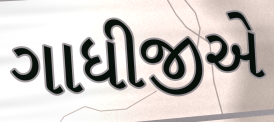
ગાધીજીએ